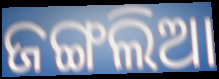
ଜଙ୍ଗଲିଆ